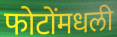
फोटोंमधली